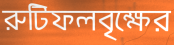
রুটিফলবৃক্ষের